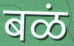
बळं